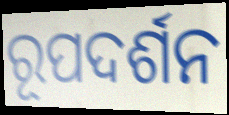
ରୂପଦର୍ଶନ